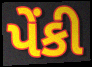
પેંકી